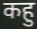
कहु